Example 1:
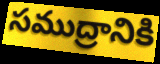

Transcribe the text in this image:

సముద్రానికి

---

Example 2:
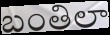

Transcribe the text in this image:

బంతిలా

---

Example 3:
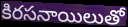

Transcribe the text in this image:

కిరసనాయిలుతో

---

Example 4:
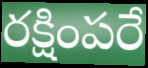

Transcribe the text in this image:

రక్షింపరే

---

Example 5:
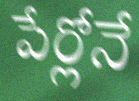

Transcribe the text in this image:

పేర్లోనే